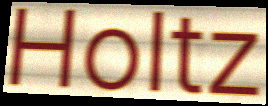
Holtz